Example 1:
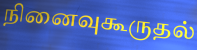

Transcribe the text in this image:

நினைவுகூருதல்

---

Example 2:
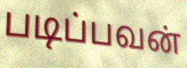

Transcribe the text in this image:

படிப்பவன்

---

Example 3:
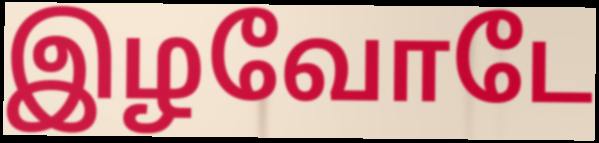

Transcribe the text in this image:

இழவோடே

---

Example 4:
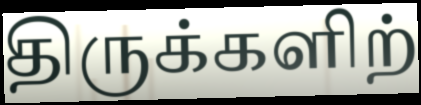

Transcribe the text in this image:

திருக்களிற்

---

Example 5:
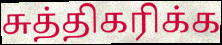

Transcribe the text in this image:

சுத்திகரிக்க